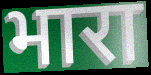
भारा